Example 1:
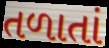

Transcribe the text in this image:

તળાતાં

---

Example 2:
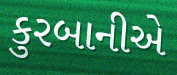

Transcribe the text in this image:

કુરબાનીએ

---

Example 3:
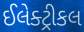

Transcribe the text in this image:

ઈલેક્ટ્રીકલ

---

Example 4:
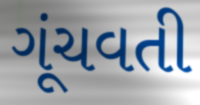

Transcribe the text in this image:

ગૂંચવતી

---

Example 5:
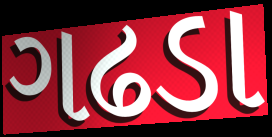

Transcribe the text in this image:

ગઢડા